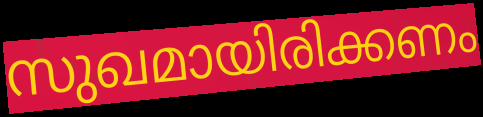
സുഖമായിരിക്കണം